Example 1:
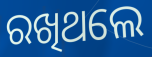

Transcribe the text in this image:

ରଖିଥଲେ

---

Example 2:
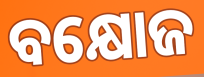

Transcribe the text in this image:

ବକ୍ଷୋଜ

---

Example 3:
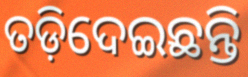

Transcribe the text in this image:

ତଡ଼ିଦେଇଛନ୍ତି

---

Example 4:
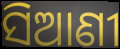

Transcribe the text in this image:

ସିଆଣୀ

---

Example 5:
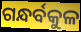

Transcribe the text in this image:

ଗନ୍ଧର୍ବକୁଳ